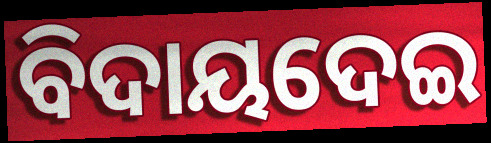
ବିଦାୟଦେଇ